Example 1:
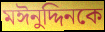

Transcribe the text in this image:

মঈনুদ্দিনকে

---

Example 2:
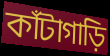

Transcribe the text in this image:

কাঁটাগাড়ি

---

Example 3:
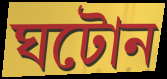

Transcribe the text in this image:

ঘটোন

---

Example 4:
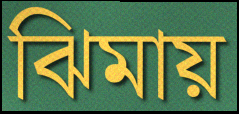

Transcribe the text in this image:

ঝিমায়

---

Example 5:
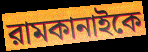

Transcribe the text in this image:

রামকানাইকে